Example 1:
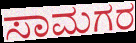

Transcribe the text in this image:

ಸಾಮಗರ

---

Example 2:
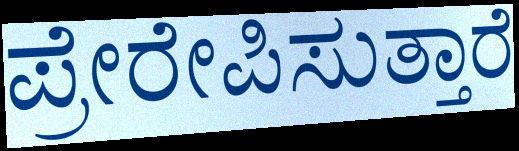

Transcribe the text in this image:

ಪ್ರೇರೇಪಿಸುತ್ತಾರೆ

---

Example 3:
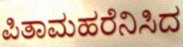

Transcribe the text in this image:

ಪಿತಾಮಹರೆನಿಸಿದ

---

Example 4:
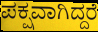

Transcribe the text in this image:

ಪಕ್ಷವಾಗಿದ್ದರೆ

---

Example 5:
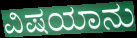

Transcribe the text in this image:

ವಿಷಯಾನು